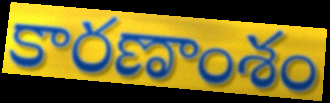
కారణాంశం